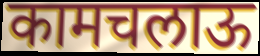
कामचलाऊ